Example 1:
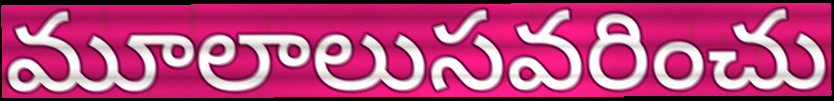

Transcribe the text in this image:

మూలాలుసవరించు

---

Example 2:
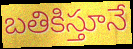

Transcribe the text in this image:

బతికిస్తూనే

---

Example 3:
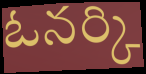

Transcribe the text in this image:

ఓనర్కి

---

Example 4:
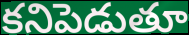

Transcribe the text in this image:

కనిపెడుతూ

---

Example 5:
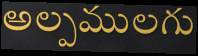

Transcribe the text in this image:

అల్పములగు